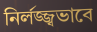
নির্লজ্জ্বভাবে